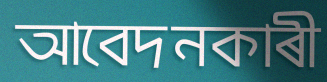
আবেদনকাৰী